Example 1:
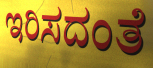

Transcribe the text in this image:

ಇರಿಸದಂತೆ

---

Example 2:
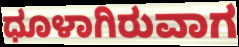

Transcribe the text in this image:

ಧೂಳಾಗಿರುವಾಗ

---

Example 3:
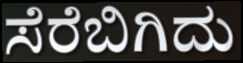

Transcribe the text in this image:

ಸೆರೆಬಿಗಿದು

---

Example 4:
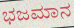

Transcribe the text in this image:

ಭಜಮಾನ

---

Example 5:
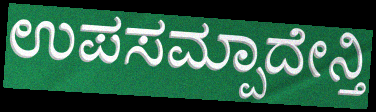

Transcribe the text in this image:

ಉಪಸಮ್ಪಾದೇನ್ತಿ